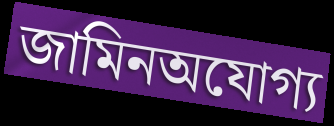
জামিনঅযোগ্য